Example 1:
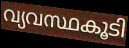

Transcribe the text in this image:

വ്യവസ്ഥകൂടി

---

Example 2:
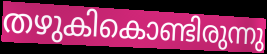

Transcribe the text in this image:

തഴുകികൊണ്ടിരുന്നു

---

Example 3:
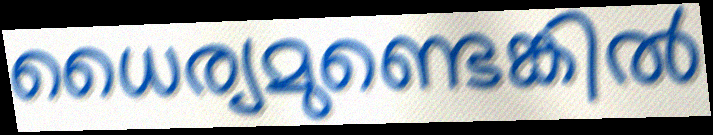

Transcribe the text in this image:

ധൈര്യമുണ്ടെങ്കിൽ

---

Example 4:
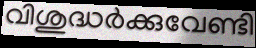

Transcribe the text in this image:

വിശുദ്ധർക്കുവേണ്ടി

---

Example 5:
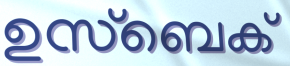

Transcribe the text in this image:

ഉസ്ബെക്